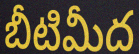
బీటిమీద